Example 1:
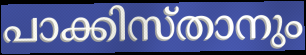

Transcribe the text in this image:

പാക്കിസ്താനും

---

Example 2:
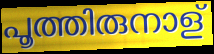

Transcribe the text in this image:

പൂത്തിരുനാള്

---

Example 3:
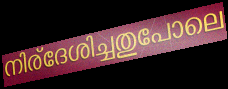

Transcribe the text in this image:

നിര്ദേശിച്ചതുപോലെ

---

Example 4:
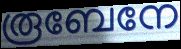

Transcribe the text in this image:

രൂബേനേ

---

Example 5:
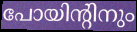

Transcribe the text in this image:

പോയിന്റിനും